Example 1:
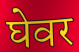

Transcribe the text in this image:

घेवर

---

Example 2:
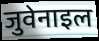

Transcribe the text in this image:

जुवेनाइल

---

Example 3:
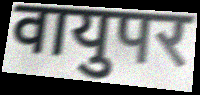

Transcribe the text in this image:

वायुपर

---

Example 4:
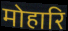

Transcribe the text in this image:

मोहारि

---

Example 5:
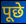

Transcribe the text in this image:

पूछे